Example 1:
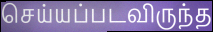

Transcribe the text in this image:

செய்யப்படவிருந்த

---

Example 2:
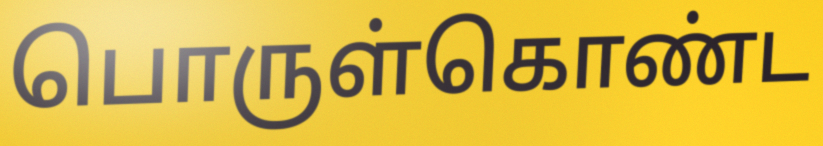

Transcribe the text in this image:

பொருள்கொண்ட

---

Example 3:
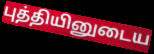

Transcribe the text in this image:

புத்தியினுடைய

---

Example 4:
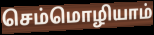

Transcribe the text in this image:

செம்மொழியாம்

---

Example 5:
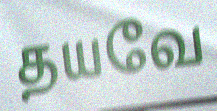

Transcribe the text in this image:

தயவே